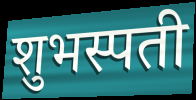
शुभस्पती